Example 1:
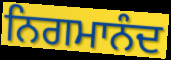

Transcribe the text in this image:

ਨਿਗਮਾਨੰਦ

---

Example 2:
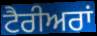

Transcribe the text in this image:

ਟੈਰੀਅਰਾਂ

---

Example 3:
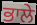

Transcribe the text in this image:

ਭਾਲੇ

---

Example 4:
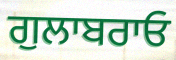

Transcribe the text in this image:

ਗੁਲਾਬਰਾਓ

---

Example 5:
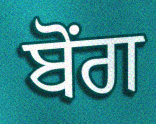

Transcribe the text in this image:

ਬੋਂਗ